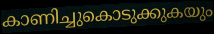
കാണിച്ചുകൊടുക്കുകയും